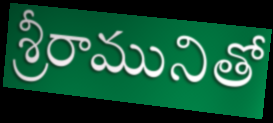
శ్రీరామునితో